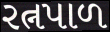
રત્નપાળ